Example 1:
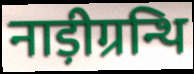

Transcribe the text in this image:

नाड़ीग्रन्थि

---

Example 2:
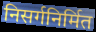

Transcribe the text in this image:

निसर्गनिर्मित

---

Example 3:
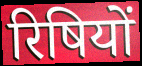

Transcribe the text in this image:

रिषियों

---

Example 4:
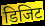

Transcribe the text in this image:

डिजिट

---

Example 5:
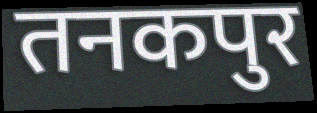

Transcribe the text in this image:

तनकपुर